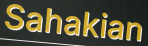
Sahakian